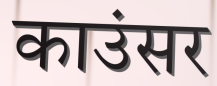
काउंसर